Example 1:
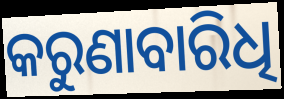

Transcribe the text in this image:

କରୁଣାବାରିଧି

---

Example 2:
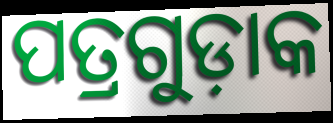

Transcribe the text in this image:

ପତ୍ରଗୁଡ଼ାକ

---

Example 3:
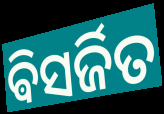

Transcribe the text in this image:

ଵିସର୍ଜିତ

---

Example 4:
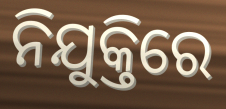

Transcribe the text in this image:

ନିଯୁକ୍ତିରେ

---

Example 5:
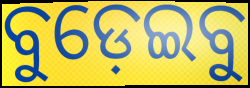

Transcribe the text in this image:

ବୁଡ଼େଇବୁ